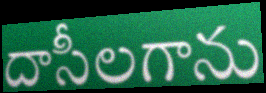
దాసీలగాను